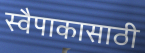
स्वैपाकासाठी